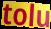
tolu